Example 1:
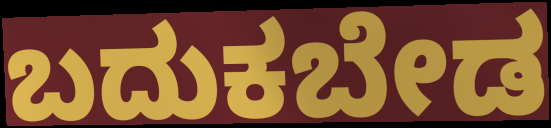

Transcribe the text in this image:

ಬದುಕಬೇಡ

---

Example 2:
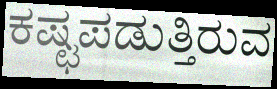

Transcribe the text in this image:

ಕಷ್ಟಪಡುತ್ತಿರುವ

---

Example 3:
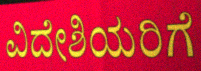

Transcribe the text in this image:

ವಿದೇಶಿಯರಿಗೆ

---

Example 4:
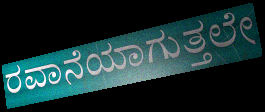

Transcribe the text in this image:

ರವಾನೆಯಾಗುತ್ತಲೇ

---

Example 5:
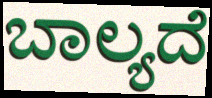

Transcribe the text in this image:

ಬಾಲ್ಯದೆ